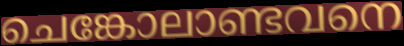
ചെങ്കോലാണ്ടവനെ